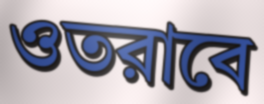
ওতরাবে